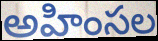
అహింసల